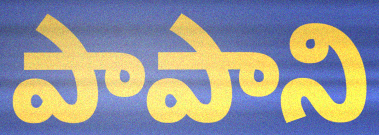
పాపాని